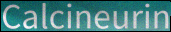
Calcineurin